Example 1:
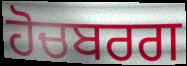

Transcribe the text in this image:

ਹੋਚਬਰਗ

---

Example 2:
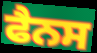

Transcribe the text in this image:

ਫੈਨਸ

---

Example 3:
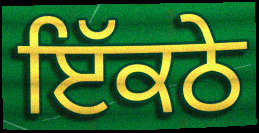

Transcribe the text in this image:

ਇੱਕਠੇ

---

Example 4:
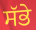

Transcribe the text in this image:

ਸੱਭੇ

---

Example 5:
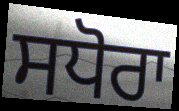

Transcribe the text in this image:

ਸਧੋਰਾ